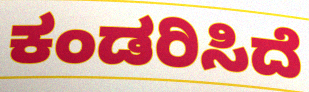
ಕಂಡರಿಸಿದೆ